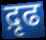
द़ृढ